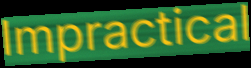
Impractical